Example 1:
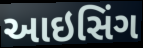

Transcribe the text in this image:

આઇસિંગ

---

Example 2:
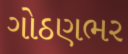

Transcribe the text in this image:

ગોઠણભર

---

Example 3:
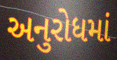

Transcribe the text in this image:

અનુરોધમાં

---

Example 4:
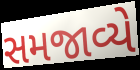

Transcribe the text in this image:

સમજાવ્યે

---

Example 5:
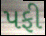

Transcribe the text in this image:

પફી